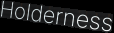
Holderness